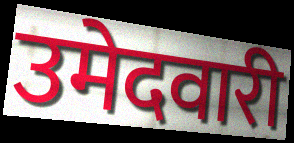
उमेदवारी